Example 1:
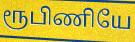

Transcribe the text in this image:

ரூபிணியே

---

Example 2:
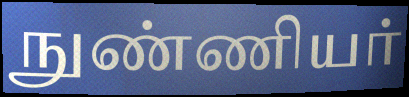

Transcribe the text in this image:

நுண்ணியர்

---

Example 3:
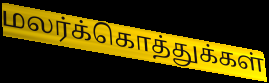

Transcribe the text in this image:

மலர்க்கொத்துக்கள்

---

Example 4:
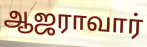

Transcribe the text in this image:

ஆஜராவார்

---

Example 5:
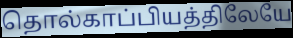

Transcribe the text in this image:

தொல்காப்பியத்திலேயே